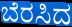
ಬೆರಸಿದ